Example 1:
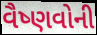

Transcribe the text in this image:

વૈષ્ણવોની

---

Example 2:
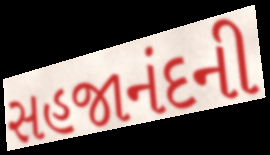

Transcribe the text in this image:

સહજાનંદની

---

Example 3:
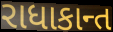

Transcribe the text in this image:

રાધાકાન્ત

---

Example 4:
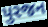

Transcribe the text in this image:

પુરજન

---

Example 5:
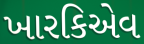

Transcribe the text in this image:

ખારકિએવ